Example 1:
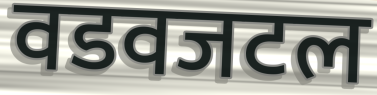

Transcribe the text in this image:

वडवजटल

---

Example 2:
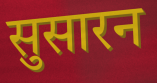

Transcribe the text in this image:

सुसारन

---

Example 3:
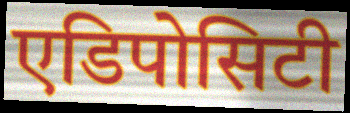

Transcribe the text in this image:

एडिपोसिटी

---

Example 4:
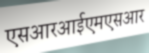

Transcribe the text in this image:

एसआरआईएमएसआर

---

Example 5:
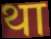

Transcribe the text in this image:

था